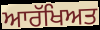
ਆਰੱਖਿਅਤ